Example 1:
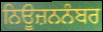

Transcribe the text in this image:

ਨਿਊਜ਼ਨਨੰਬਰ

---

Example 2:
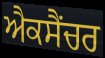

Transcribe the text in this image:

ਐਕਸੈਂਚਰ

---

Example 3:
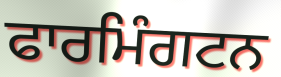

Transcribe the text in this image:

ਫਾਰਮਿੰਗਟਨ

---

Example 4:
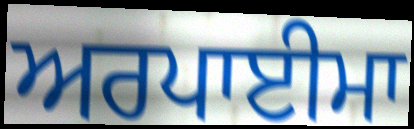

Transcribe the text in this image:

ਅਰਪਾਈਮਾ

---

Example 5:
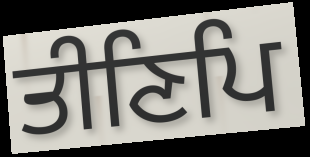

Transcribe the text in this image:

ਤੀਣਿਪਿ